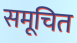
समूचित